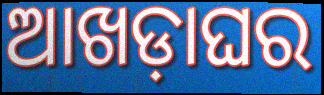
ଆଖଡ଼ାଘର